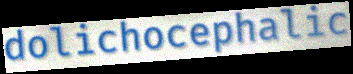
dolichocephalic